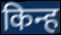
किन्ह